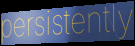
persistently